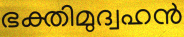
ഭക്തിമുദ്വഹൻ